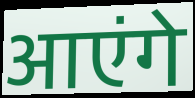
आएंगे